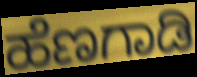
ಹೆಣಗಾಡಿ